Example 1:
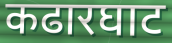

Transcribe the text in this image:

कढारघाट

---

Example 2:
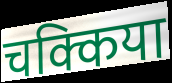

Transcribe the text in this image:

चक्किया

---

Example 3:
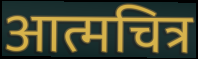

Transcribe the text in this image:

आत्मचित्र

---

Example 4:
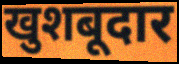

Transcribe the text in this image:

खुशबूदार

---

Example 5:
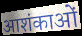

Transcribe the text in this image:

आशंकाओं